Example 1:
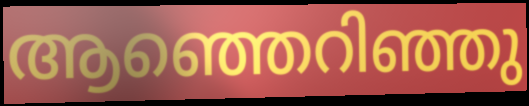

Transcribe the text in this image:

ആഞ്ഞെറിഞ്ഞു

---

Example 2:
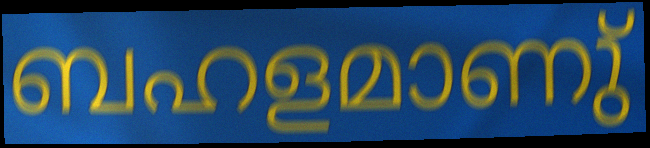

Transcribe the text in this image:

ബഹളമാണു്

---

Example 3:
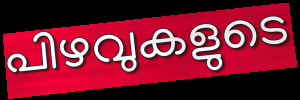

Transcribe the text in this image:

പിഴവുകളുടെ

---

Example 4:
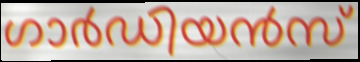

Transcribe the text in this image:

ഗാർഡിയൻസ്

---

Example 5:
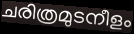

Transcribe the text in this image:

ചരിത്രമുടനീളം